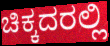
ಚಿಕ್ಕದರಲ್ಲಿ